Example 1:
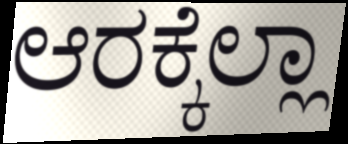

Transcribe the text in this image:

ಆರಕ್ಕೆಲ್ಲಾ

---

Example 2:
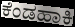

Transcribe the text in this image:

ಕೆಂಡಹಾಕಿ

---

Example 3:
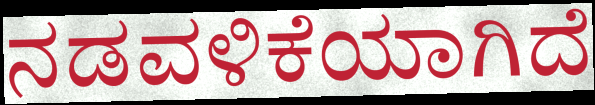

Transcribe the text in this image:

ನಡವಳಿಕೆಯಾಗಿದೆ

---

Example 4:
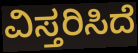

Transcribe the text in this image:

ವಿಸ್ತರಿಸಿದೆ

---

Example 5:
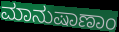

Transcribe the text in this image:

ಮಾನುಷಾಣಾಂ